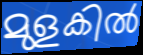
മുളകിൽ